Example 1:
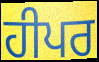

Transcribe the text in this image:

ਹੀਪਰ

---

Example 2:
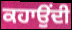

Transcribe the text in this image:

ਕਹਾਉਂਦੀ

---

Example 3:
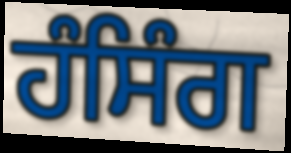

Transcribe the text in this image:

ਹੰਸਿੰਗ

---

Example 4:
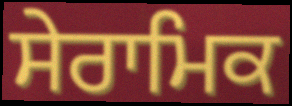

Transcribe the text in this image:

ਸੇਰਾਮਿਕ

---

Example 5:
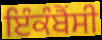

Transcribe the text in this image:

ਇੰਕੰਬੈਂਸੀ